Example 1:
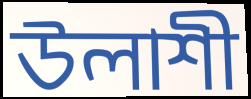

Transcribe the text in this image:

উলাশী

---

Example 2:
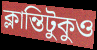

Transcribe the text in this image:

ক্লান্তিটুকুও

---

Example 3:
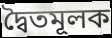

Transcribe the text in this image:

দ্বৈতমূলক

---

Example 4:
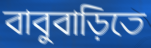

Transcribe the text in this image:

বাবুবাড়িতে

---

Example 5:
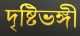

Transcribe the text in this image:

দৃষ্টিভঙ্গী